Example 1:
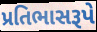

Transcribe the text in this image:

પ્રતિભાસરૂપે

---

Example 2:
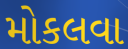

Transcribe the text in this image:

મોકલવા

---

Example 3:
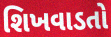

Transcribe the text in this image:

શિખવાડતો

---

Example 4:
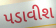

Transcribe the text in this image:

પડાવીશ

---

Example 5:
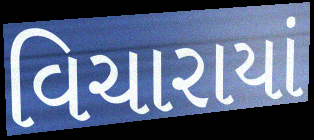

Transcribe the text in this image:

વિચારાયાં